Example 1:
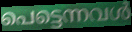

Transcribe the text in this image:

പെട്ടെന്നവൾ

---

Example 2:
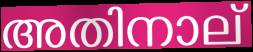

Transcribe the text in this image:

അതിനാല്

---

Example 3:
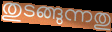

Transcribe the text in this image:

തുടങ്ങുന്നതു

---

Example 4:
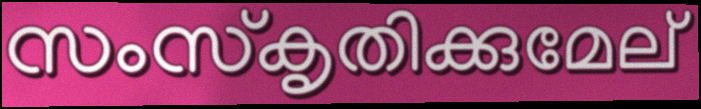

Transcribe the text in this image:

സംസ്കൃതിക്കുമേല്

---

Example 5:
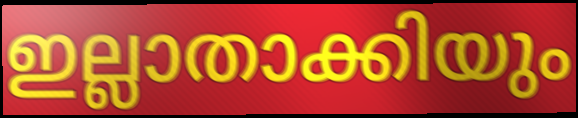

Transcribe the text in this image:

ഇല്ലാതാക്കിയും